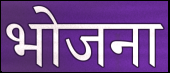
भोजना